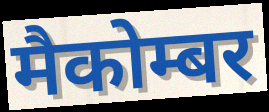
मैकोम्बर